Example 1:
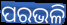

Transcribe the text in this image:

ପରଭଳି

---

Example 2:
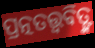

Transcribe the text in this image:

ପ୍ରତ୍ନତତ୍ତ୍ୱବିତ୍ଙ୍କ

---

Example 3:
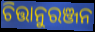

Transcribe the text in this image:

ଚିତ୍ତାନୁରଞ୍ଜନ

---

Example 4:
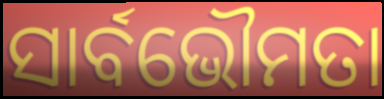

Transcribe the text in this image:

ସାର୍ବଭୌମତା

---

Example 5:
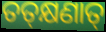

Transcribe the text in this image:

ତତ୍‍କ୍ଷଣାତ୍